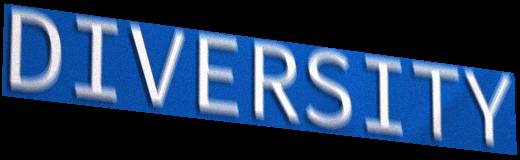
DIVERSITY